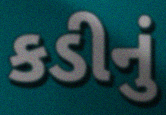
કડીનું